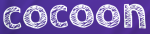
cocoon